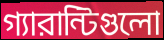
গ্যারান্টিগুলো